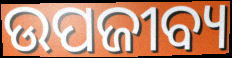
ଉପଜୀବ୍ୟ